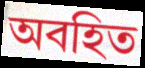
অবহিত